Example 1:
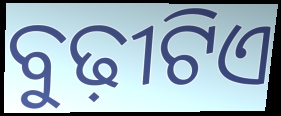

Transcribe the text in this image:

ବୁଢ଼ୀଟିଏ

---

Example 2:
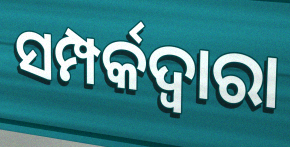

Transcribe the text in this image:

ସମ୍ପର୍କଦ୍ୱାରା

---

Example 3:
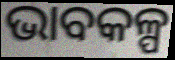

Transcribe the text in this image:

ଭାବକଳ୍ପ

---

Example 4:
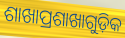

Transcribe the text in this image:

ଶାଖାପ୍ରଶାଖାଗୁଡ଼ିକ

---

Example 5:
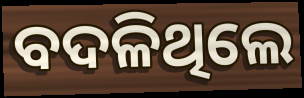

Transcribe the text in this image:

ବଦଳିଥିଲେ